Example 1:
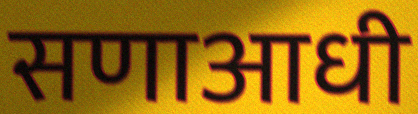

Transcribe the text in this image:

सणाआधी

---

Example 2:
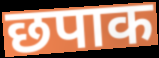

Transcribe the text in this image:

छपाक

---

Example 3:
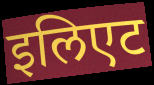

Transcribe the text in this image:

इलिएट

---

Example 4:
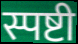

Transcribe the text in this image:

स्पष्टी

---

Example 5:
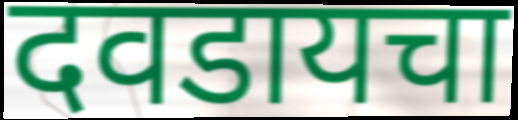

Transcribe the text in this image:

दवडायचा